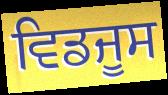
ਵਿਡਜੂਸ